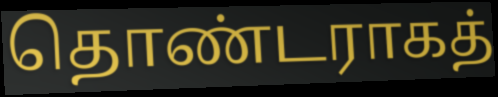
தொண்டராகத்